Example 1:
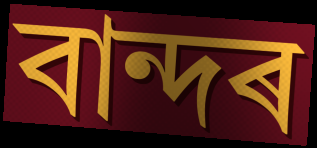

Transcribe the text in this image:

বান্দৰ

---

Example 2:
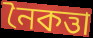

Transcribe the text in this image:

নৈকত্তা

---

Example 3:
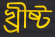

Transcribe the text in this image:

খ্ৰীষ্ট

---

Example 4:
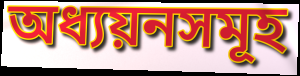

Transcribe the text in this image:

অধ্যয়নসমূহ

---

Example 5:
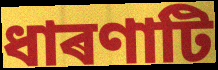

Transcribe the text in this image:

ধাৰণাটি